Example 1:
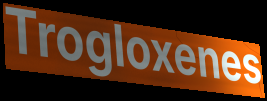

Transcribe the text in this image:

Trogloxenes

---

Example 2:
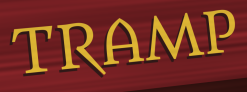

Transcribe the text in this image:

TRAMP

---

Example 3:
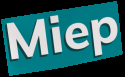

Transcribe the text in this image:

Miep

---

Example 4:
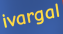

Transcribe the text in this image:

ivargal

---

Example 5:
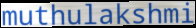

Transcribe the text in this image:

muthulakshmi